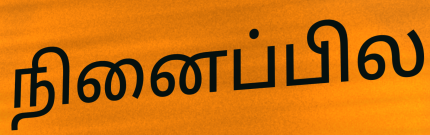
நினைப்பில